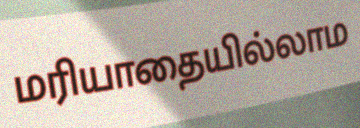
மரியாதையில்லாம